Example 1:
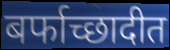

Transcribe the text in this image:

बर्फाच्छादीत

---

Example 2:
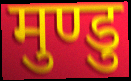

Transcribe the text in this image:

मुण्डु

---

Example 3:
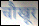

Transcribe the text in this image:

चौखूर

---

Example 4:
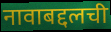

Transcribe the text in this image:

नावाबद्दलची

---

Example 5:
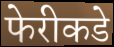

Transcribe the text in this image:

फेरीकडे